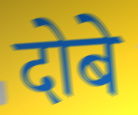
दोबे